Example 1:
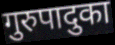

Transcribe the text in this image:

गुरुपादुका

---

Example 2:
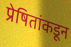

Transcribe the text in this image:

प्रेषितांकडून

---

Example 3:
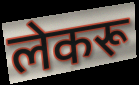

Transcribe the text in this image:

लेकरू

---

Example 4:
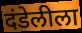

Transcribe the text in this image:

दंडेलीला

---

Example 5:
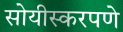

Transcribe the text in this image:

सोयीस्करपणे